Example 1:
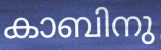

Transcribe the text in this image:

കാബിനു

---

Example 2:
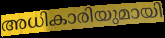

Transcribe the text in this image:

അധികാരിയുമായി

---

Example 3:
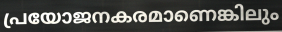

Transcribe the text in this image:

പ്രയോജനകരമാണെങ്കിലും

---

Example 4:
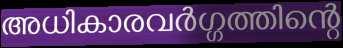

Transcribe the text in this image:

അധികാരവർഗ്ഗത്തിന്റെ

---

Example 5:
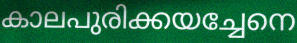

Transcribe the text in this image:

കാലപുരിക്കയച്ചേനെ